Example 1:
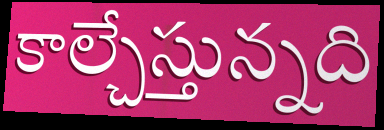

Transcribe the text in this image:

కాల్చేస్తున్నది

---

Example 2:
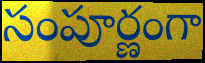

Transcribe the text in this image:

సంపూర్ణంగా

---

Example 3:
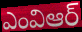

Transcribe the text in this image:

ఎంవిఆర్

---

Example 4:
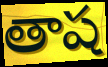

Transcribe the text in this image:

తాష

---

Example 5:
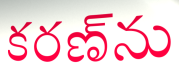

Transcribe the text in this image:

కరణ్‌ను